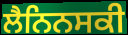
ਲੈਨਿਨਸਕੀ